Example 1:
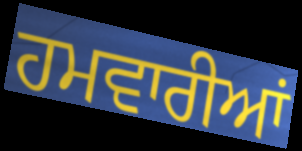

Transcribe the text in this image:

ਹਮਵਾਰੀਆਂ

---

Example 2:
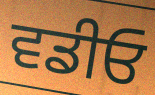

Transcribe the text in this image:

ਵਡੀਓ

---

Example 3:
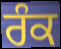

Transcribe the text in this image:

ਰੰਕ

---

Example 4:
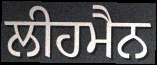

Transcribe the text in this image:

ਲੀਹਮੈਨ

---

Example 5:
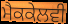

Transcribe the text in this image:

ਮੈਕਕੇਲਵੀ